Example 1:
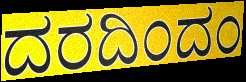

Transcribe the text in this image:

ದರದಿಂದಂ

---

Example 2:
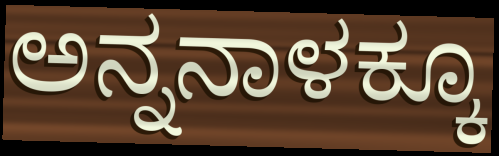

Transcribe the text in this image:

ಅನ್ನನಾಳಕ್ಕೂ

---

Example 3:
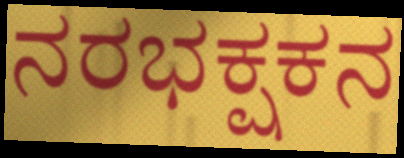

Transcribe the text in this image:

ನರಭಕ್ಷಕನ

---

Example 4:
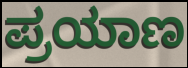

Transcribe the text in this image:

ಪ್ರಯಾಣ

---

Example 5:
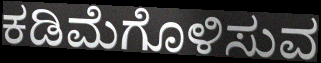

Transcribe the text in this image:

ಕಡಿಮೆಗೊಳಿಸುವ